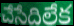
చేసేదిలేక